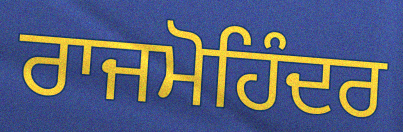
ਰਾਜਮੋਹਿੰਦਰ